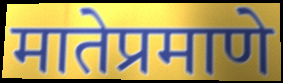
मातेप्रमाणे